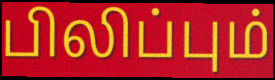
பிலிப்பும்